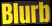
Blurb